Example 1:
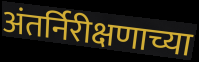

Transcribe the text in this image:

अंतर्निरीक्षणाच्या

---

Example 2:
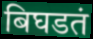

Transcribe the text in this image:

बिघडतं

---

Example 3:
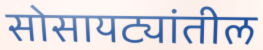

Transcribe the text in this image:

सोसायट्यांतील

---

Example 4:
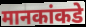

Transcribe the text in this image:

मानकांकडे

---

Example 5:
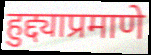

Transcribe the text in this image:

हुद्द्याप्रमाणे